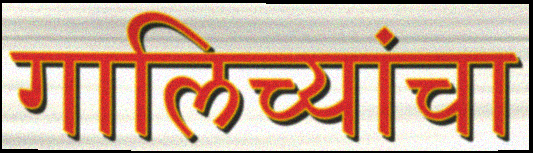
गालिच्यांचा